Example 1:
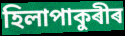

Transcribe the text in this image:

হিলাপাকুৰীৰ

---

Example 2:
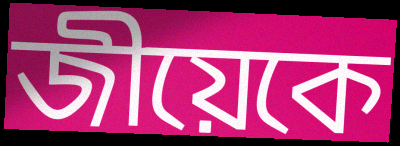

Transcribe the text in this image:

জীয়েকে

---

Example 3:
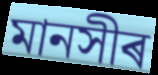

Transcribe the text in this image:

মানসীৰ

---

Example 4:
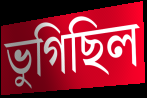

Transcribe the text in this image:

ভুগিছিল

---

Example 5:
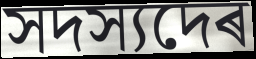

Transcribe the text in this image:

সদস্যদেৰ